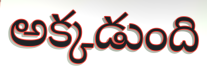
అక్కడుంది